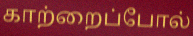
காற்றைப்போல்